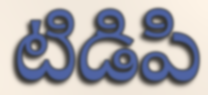
టిడిపి